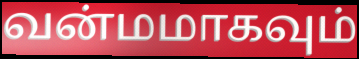
வன்மமாகவும்